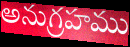
అనుగ్రహము